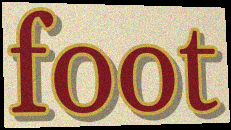
foot